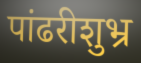
पांढरीशुभ्र